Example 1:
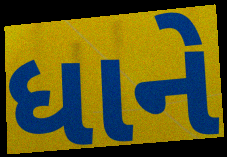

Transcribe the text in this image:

ધાને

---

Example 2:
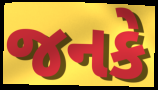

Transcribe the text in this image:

જનકે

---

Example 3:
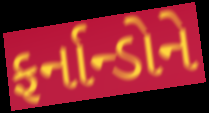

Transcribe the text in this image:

ફર્નાન્ડોને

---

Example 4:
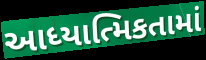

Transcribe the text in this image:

આધ્યાત્મિકતામાં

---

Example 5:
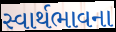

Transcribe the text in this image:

સ્વાર્થભાવના